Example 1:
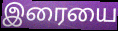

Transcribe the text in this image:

இரையை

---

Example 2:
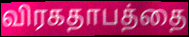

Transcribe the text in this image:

விரகதாபத்தை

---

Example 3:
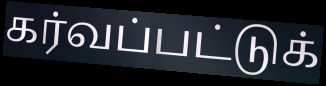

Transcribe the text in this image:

கர்வப்பட்டுக்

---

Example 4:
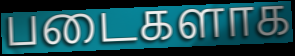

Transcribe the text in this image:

படைகளாக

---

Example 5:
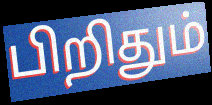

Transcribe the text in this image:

பிறிதும்